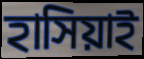
হাসিয়াই